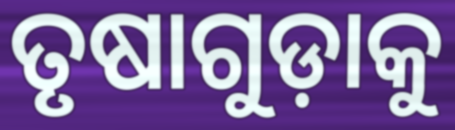
ତୃଷାଗୁଡ଼ାକୁ